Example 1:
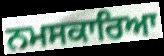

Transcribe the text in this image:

ਨਮਸਕਾਰਿਆ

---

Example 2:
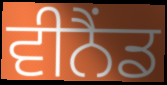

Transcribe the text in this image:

ਵੀਨੈਂਡ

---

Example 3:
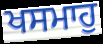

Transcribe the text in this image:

ਖਸਮਾਹੁ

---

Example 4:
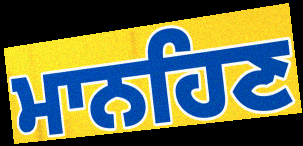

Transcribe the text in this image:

ਮਾਨਹਿਣ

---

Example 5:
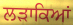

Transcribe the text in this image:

ਲੜਾਕਿਆਂ